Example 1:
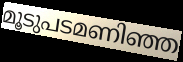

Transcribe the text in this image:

മൂടുപടമണിഞ്ഞ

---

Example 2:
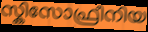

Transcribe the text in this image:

സ്കിസോഫ്രീനിയ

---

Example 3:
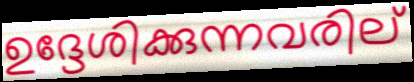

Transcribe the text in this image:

ഉദ്ദേശിക്കുന്നവരില്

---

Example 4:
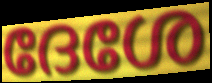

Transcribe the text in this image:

ദേശേ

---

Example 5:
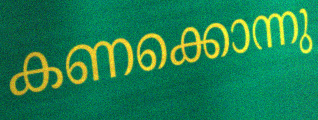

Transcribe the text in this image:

കണക്കൊന്നു